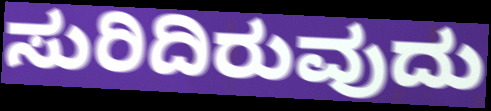
ಸುರಿದಿರುವುದು